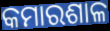
କମାରଶାଳ